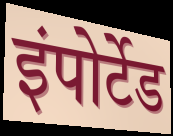
इंपोर्टेड